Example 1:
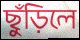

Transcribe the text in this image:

ছুঁড়িলে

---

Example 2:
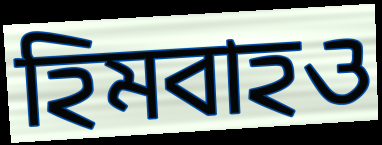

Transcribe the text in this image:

হিমবাহও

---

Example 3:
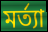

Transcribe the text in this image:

মর্ত্যা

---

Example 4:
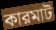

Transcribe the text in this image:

কারমাট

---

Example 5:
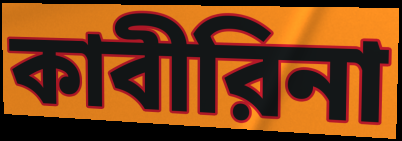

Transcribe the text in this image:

কাবীরিনা